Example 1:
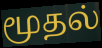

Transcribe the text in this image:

மூதல்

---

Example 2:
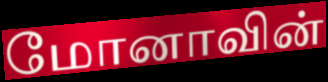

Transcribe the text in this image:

மோனாவின்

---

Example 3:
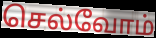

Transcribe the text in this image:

செல்வோம்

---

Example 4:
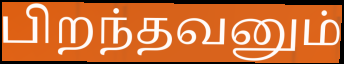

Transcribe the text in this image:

பிறந்தவனும்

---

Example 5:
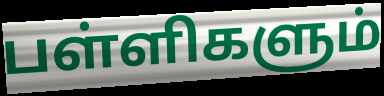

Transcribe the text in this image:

பள்ளிகளும்